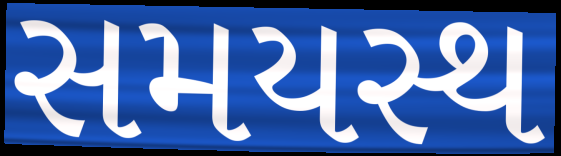
સમયસ્થ